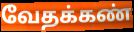
வேதக்கண்